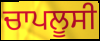
ਚਾਪਲੂਸੀ